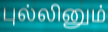
புல்லினும்